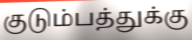
குடும்பத்துக்கு